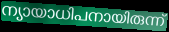
ന്യായാധിപനായിരുന്ന്